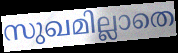
സുഖമില്ലാതെ